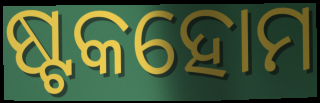
ଷ୍ଟକହୋମ